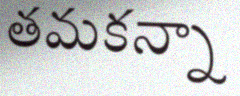
తమకన్నా